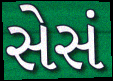
સેસં